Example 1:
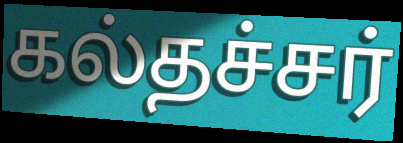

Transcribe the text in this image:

கல்தச்சர்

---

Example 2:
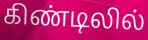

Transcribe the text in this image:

கிண்டிலில்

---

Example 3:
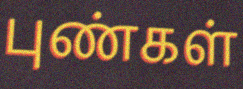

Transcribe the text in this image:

புண்கள்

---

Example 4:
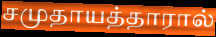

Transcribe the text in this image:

சமுதாயத்தாரால்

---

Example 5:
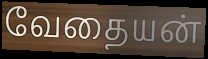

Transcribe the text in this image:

வேதையன்